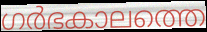
ഗർഭകാലത്തെ